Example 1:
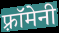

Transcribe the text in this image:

फ़्रॉमेनी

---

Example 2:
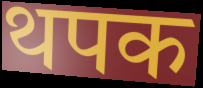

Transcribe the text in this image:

थपक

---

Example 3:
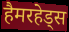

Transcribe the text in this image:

हैमरहेड्स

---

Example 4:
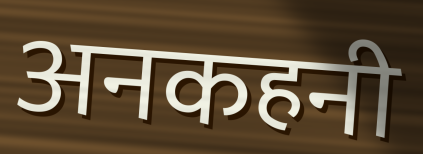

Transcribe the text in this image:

अनकहनी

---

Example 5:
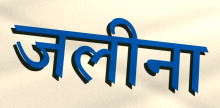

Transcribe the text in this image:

जलीना